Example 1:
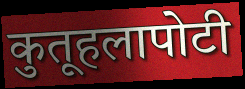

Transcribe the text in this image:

कुतूहलापोटी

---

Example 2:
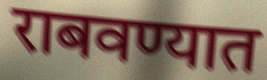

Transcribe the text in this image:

राबवण्यात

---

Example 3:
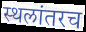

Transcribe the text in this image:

स्थलांतरच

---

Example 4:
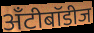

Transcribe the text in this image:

अँटीबॉडीज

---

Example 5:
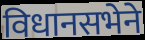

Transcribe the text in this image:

विधानसभेने